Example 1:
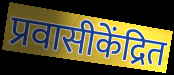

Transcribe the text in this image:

प्रवासीकेंद्रित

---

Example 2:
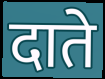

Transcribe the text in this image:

दाते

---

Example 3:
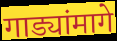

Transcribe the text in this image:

गाड्यांमागे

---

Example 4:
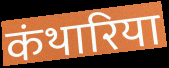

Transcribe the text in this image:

कंथारिया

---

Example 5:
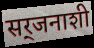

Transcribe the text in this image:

सर्जनाशी